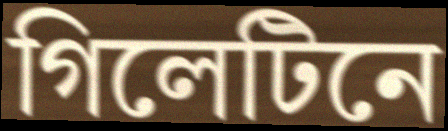
গিলেটিনে